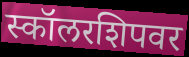
स्कॉलरशिपवर